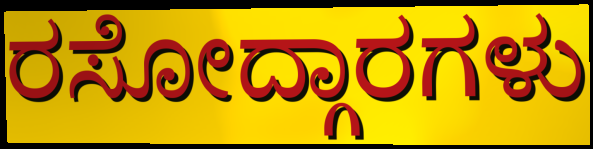
ರಸೋದ್ಗಾರಗಳು